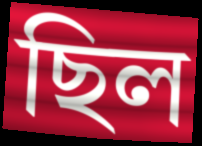
ছিল